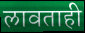
लावताही